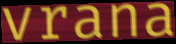
vrana